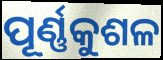
ପୂର୍ଣ୍ଣକୁଶଳ